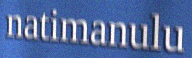
natimanulu